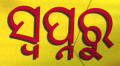
ସ୍ୱପ୍ନରୁ